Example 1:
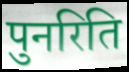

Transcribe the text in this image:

पुनरिति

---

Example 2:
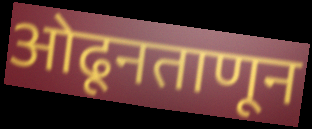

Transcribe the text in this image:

ओढूनताणून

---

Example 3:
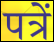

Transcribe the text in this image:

पत्रें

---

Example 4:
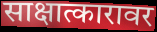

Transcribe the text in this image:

साक्षात्कारावर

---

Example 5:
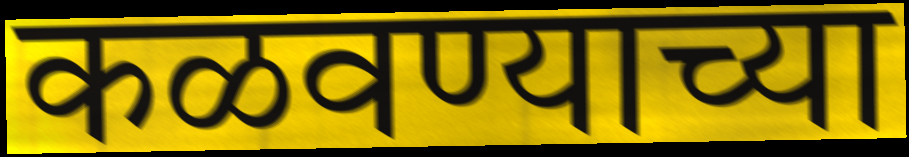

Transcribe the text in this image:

कळवण्याच्या